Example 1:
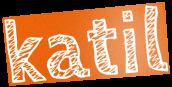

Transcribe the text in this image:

katil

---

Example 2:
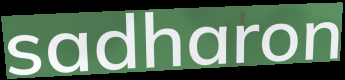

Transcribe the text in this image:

sadharon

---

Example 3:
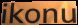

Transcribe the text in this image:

ikonu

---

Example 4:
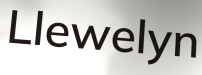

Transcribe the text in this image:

Llewelyn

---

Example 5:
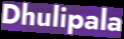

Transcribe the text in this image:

Dhulipala